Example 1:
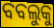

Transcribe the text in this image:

ବବଲୁକୁ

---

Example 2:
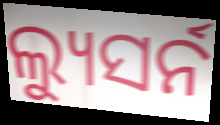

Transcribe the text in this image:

ଲ୍ୟୁସର୍ନ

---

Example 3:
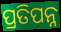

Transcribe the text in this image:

ପ୍ରତିପନ୍ନ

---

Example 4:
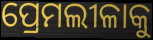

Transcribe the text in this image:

ପ୍ରେମଲୀଳାକୁ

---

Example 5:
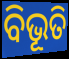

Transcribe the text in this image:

ବିଭୂତି